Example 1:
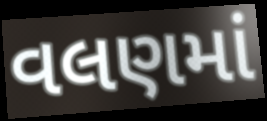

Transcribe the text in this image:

વલણમાં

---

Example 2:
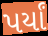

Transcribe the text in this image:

પર્યાં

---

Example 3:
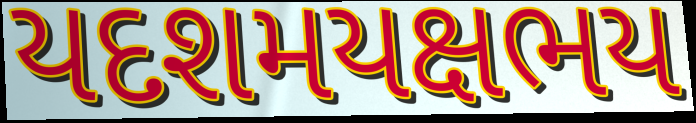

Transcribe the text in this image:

યદશમયક્ષભય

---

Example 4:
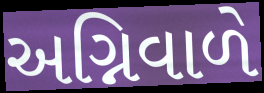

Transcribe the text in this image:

અગ્નિવાળે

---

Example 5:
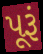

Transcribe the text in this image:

પૂરૂં